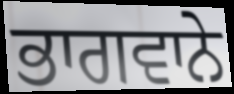
ਭਾਗਵਾਨੇ